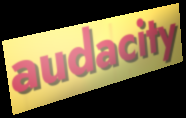
audacity